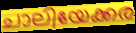
ചാലിയേക്കര